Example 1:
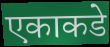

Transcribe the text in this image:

एकाकडे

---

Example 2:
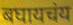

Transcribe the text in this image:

बघायचंय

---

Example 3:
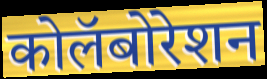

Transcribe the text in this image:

कोलॅबोरेशन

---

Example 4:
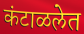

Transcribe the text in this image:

कंटाळलेत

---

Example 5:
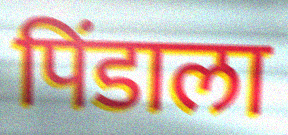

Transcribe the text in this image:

पिंडाला